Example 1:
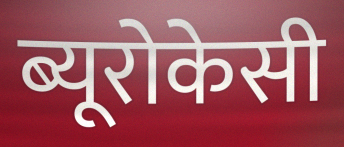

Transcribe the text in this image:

ब्यूरोकेसी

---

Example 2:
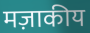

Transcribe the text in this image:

मज़ाकीय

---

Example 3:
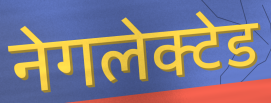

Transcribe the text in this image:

नेगलेक्टेड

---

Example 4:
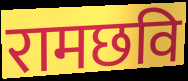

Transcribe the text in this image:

रामछवि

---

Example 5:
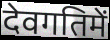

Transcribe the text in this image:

देवगतिमें